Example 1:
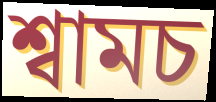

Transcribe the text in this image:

শ্বামচ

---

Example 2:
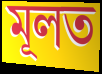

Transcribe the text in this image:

মূলত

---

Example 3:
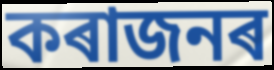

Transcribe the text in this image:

কৰাজনৰ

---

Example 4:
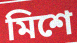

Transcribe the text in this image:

মিশে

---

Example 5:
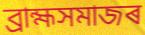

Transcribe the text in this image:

ব্ৰাহ্মসমাজৰ